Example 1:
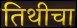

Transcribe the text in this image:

तिथीचा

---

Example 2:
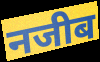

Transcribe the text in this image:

नजीब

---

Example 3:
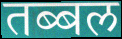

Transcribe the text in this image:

तब्बल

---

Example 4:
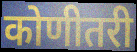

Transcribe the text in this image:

कोणीतरी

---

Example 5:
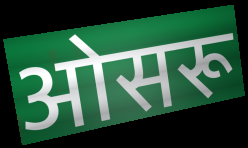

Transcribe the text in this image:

ओसरू